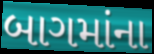
બાગમાંના